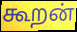
கூறன்